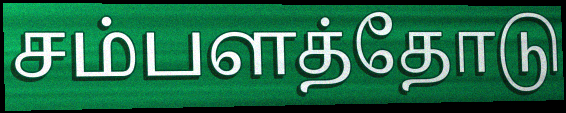
சம்பளத்தோடு